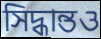
সিদ্ধান্তও